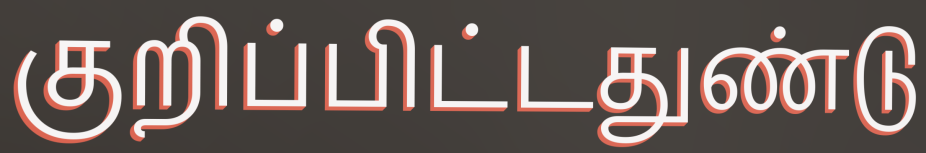
குறிப்பிட்டதுண்டு